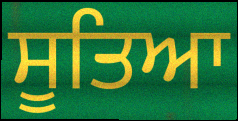
ਸੂਤਿਆ